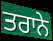
ਤਰਾਨੇ